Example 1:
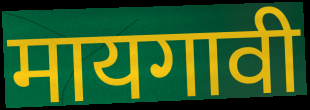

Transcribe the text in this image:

मायगावी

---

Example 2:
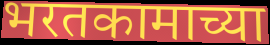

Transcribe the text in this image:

भरतकामाच्या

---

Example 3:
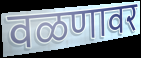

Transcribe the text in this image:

वळणावर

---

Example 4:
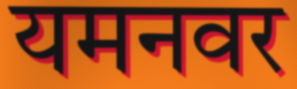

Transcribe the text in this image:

यमनवर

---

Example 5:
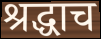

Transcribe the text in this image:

श्रद्धाच